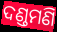
ଦଣ୍ଡମଣି